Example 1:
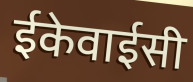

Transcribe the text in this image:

ईकेवाईसी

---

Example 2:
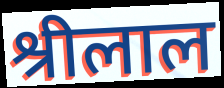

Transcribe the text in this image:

श्रीलाल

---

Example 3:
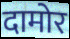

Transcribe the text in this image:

दामोर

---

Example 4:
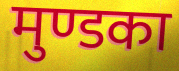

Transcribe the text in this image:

मुण्डका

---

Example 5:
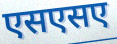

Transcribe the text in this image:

एसएसए